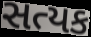
સત્યક